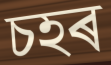
চহৰ